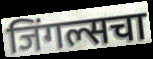
जिंगल्सचा